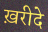
ख़रीदे